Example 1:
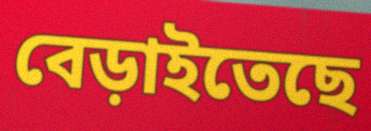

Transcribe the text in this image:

বেড়াইতেছে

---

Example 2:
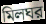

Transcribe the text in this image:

মিলঘর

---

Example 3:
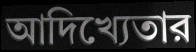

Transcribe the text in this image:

আদিখ্যেতার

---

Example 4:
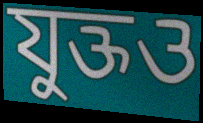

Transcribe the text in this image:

যুক্তও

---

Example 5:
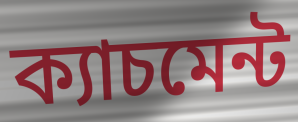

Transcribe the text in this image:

ক্যাচমেন্ট